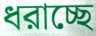
ধরাচ্ছে